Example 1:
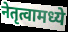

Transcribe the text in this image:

नेतृत्वामध्ये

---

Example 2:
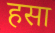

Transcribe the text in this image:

हसा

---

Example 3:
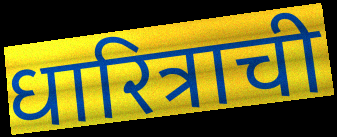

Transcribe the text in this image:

धारित्राची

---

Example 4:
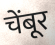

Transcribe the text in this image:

चेंबूर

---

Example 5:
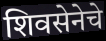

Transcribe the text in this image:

शिवसेनेचे